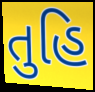
તુહિ